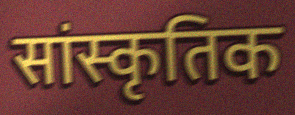
सांस्कृतिक